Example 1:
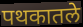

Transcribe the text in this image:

पथकातले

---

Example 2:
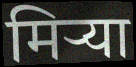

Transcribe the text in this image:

मिऱ्या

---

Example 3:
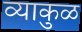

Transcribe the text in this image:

व्याकुळ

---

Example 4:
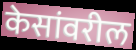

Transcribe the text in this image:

केसांवरील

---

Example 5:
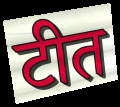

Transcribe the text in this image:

टीत